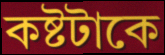
কষ্টটাকে